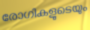
രോഗികളുടെയും